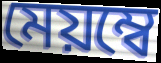
মেয়ম্বে